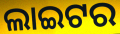
ଲାଇଟର